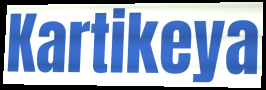
Kartikeya